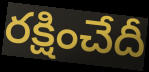
రక్షించేదీ